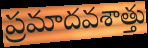
ప్రమాదవశాత్తు